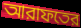
আরাফতের